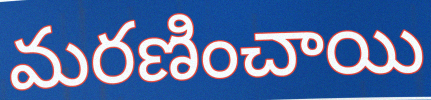
మరణించాయి